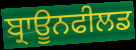
ਬ੍ਰਾਊਨਫੀਲਡ